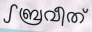
ഽബ്രവീത്